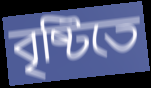
বৃষ্টিতে